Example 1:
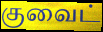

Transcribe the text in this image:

குவைட்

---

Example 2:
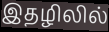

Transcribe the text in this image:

இதழிலில்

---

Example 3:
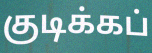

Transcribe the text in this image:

குடிக்கப்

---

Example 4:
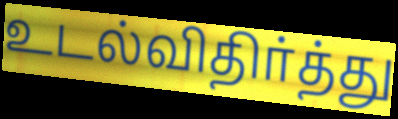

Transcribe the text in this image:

உடல்விதிர்த்து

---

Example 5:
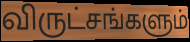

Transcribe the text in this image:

விருட்சங்களும்